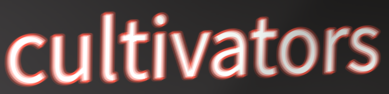
cultivators